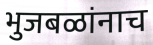
भुजबळांनाच